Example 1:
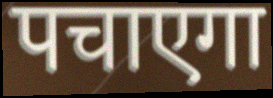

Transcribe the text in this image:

पचाएगा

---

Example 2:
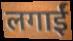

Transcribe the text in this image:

लगाईं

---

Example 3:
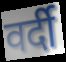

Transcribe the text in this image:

वर्दी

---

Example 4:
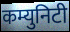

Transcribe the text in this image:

कम्युनिटी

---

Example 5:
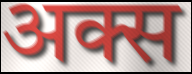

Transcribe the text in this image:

अक्स